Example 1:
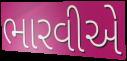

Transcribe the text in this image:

ભારવીએ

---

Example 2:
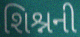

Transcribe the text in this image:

શિશ્નની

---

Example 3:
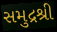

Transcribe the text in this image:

સમુદ્રશ્રી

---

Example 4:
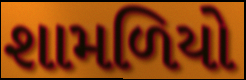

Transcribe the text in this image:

શામળિયો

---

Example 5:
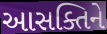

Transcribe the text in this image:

આસક્તિને